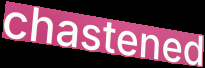
chastened